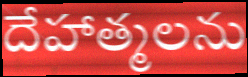
దేహాత్మలను